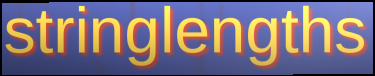
stringlengths